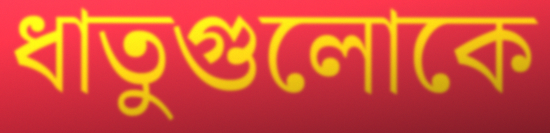
ধাতুগুলোকে